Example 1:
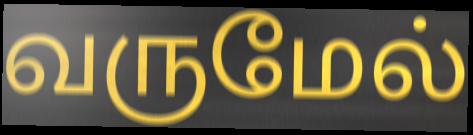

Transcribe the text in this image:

வருமேல்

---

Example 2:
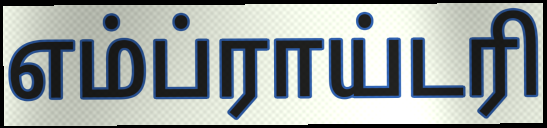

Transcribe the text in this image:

எம்ப்ராய்டரி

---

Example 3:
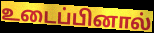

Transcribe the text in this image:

உடைப்பினால்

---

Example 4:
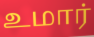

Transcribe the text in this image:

உமார்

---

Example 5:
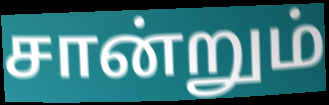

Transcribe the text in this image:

சான்றும்